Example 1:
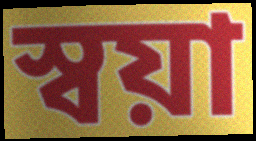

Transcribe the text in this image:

স্বয়া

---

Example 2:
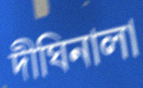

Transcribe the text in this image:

দীঘিনালা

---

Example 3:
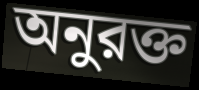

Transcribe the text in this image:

অনুরক্ত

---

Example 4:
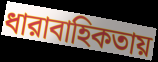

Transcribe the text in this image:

ধারাবাহিকতায়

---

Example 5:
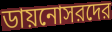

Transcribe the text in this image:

ডায়নোসরদের